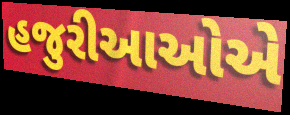
હજુરીઆઓએ